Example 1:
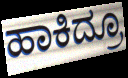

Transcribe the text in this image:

ಹಾಕಿದ್ರೂ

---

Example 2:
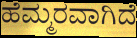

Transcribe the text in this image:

ಹೆಮ್ಮರವಾಗಿದೆ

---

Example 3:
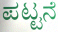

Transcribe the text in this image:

ಪಟ್ಟನೆ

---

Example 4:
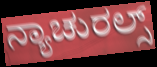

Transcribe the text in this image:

ನ್ಯಾಚುರಲ್ಸ್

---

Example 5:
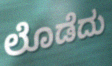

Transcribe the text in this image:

ಲೊಡೆದು